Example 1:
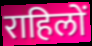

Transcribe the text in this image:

राहिलों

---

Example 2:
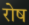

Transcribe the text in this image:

रोष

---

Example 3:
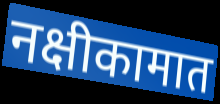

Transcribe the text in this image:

नक्षीकामात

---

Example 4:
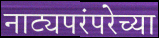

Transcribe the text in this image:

नाट्यपरंपरेच्या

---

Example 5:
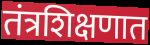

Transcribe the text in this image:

तंत्रशिक्षणात